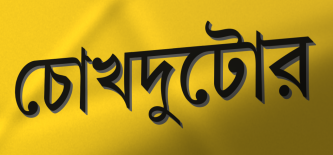
চোখদুটোর